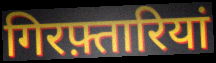
गिरफ़्तारियां